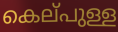
കെല്‌പുള്ള